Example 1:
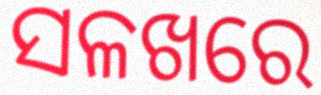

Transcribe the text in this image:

ସଳଖରେ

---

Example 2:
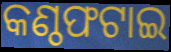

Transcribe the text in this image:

କଣ୍ଠଫଟାଇ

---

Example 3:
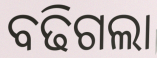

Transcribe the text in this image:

ବଢିଗଲା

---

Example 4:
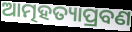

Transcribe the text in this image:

ଆତ୍ମହତ୍ୟାପ୍ରବଣ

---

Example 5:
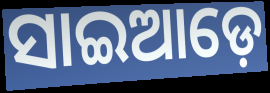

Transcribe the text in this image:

ସାଇଆଡ଼େ